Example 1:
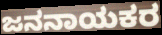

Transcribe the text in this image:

ಜನನಾಯಕರ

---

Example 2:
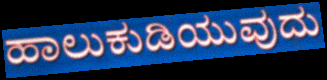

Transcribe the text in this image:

ಹಾಲುಕುಡಿಯುವುದು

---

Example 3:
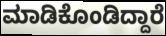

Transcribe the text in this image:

ಮಾಡಿಕೊಂಡಿದ್ದಾರೆ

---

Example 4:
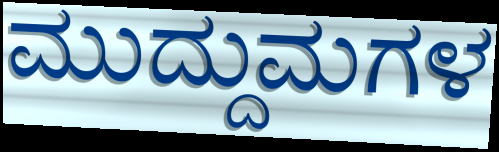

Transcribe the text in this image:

ಮುದ್ದುಮಗಳ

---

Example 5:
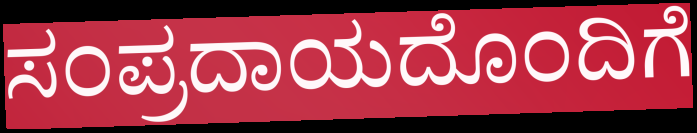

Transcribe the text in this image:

ಸಂಪ್ರದಾಯದೊಂದಿಗೆ